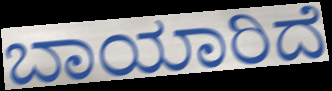
ಬಾಯಾರಿದೆ